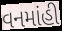
વનમાંહી